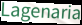
Lagenaria